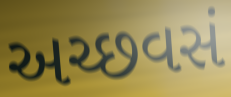
અચ્છવસં